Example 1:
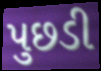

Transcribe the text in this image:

પુછડી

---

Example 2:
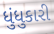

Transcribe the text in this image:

ધુંધુકારી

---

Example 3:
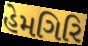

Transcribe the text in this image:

હેમગિરિ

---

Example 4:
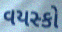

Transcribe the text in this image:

વયસ્કો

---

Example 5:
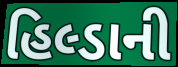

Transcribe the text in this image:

હિલ્ડાની